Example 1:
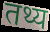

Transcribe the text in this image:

तथ्य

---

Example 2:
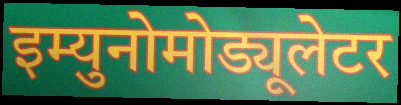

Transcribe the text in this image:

इम्युनोमोड्यूलेटर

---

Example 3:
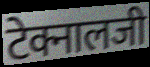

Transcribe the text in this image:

टेक्नालजी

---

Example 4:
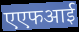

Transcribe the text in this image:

एएफआई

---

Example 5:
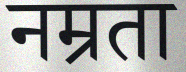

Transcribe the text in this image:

नम्रता